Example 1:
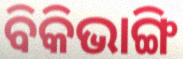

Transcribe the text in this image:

ବିକିଭାଙ୍ଗି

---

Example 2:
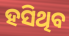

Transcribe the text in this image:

ହସିଥିବ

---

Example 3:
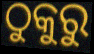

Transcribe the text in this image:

ଠୁକୁରୁ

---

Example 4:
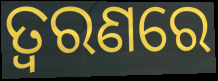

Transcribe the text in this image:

ତ୍ଵରଣରେ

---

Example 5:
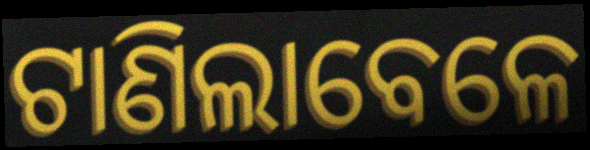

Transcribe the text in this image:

ଟାଣିଲାବେଳେ